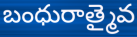
బంధురాత్మైవ